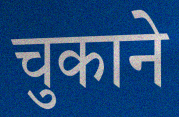
चुकाने